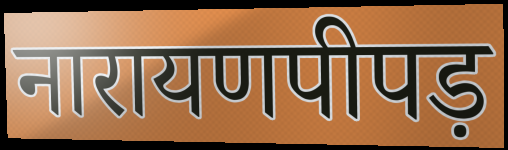
नारायणपीपड़